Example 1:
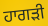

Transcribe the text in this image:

ਹਾਗੜੀ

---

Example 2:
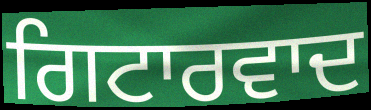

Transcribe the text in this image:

ਗਿਟਾਰਵਾਦ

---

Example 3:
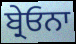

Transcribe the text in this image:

ਬ੍ਰੇਓਨਾ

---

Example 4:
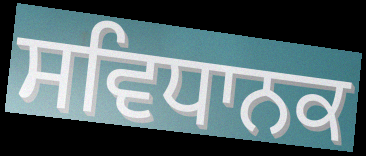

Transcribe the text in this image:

ਸਵਿਧਾਨਕ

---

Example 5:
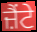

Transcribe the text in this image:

ਜ਼ੈਂਟੇ